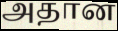
அதான